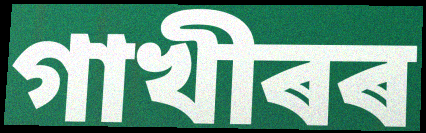
গাখীৰৰ